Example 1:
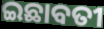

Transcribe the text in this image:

ଇଛାବତୀ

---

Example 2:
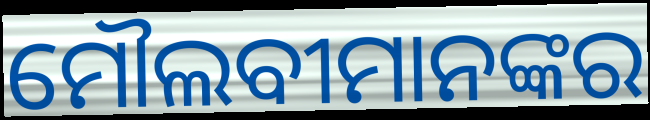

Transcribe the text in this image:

ମୌଲବୀମାନଙ୍କର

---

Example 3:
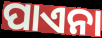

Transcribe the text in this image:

ପାଏନା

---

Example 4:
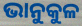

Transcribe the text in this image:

ଭାନୁକୁଳ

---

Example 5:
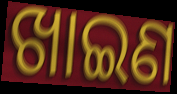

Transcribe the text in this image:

ଖାଇଣ